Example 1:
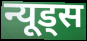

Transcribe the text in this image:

न्यूड्स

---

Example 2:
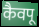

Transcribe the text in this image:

कैवपू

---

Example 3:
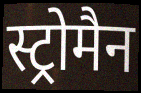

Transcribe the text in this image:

स्ट्रोमैन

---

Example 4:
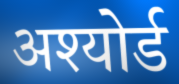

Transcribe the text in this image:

अश्योर्ड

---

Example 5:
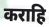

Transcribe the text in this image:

कराहि